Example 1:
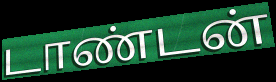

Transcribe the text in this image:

டாண்டன்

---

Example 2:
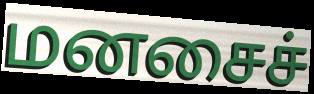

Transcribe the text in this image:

மனசைச்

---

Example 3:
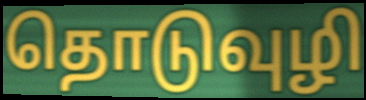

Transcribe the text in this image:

தொடுவுழி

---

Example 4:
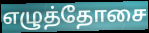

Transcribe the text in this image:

எழுத்தோசை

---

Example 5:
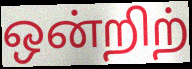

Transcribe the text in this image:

ஒன்றிற்